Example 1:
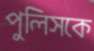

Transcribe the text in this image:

পুলিসকে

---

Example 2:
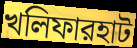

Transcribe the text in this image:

খলিফারহাট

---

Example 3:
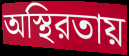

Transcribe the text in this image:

অস্থিরতায়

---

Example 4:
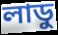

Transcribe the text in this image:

লাডু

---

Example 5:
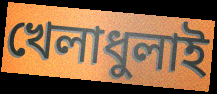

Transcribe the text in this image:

খেলাধুলাই